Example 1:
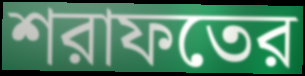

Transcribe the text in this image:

শরাফতের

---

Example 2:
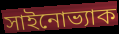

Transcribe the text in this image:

সাইনোভ্যাক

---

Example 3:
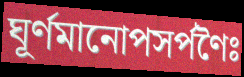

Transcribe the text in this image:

ঘূর্ণমানোপসর্পণৈঃ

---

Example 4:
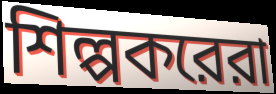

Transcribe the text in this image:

শিল্পকরেরা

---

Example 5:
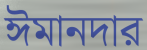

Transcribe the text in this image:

ঈমানদার